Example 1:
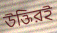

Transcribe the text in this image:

উক্তিরই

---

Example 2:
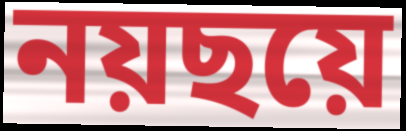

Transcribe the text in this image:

নয়ছয়ে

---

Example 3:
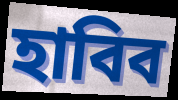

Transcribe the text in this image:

হাবিব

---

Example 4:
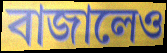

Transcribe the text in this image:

বাজালেও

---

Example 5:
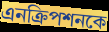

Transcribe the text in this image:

এনক্রিপশনকে